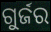
ଗୁର୍ଜର